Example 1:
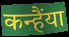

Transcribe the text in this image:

कन्हैंया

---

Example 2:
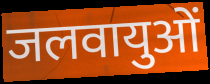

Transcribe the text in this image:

जलवायुओं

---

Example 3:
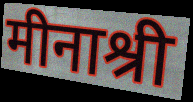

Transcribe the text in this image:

मीनाश्री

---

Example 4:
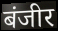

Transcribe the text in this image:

बंजीर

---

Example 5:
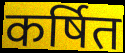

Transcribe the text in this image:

कर्षित